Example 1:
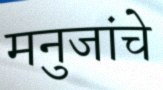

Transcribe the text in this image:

मनुजांचे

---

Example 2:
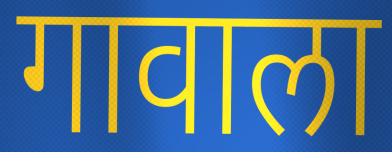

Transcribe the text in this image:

गावाला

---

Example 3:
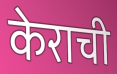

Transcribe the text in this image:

केराची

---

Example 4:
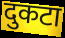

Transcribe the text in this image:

दुकटा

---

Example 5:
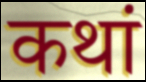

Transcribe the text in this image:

कथां